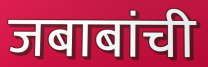
जबाबांची